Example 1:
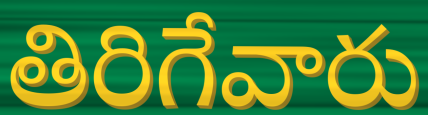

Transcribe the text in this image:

తిరిగేవారు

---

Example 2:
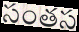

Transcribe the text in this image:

సంతస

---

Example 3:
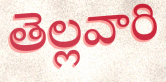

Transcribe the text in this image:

తెల్లవారి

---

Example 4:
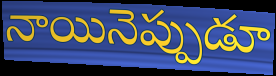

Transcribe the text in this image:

నాయినెప్పుడూ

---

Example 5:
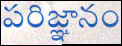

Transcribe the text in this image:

పరిజ్ఞానం